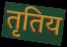
तृतिय